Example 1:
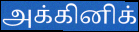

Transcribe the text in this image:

அக்கினிக்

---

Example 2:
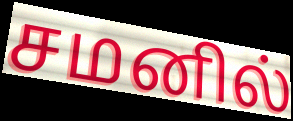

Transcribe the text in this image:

சமனில்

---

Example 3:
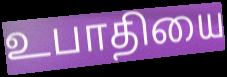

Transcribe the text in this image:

உபாதியை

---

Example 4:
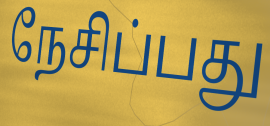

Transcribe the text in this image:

நேசிப்பது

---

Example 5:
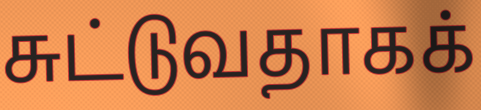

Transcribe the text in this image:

சுட்டுவதாகக்